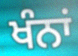
ਖੰਨਾਂ